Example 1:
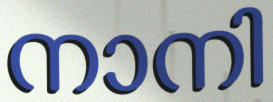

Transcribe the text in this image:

നാനി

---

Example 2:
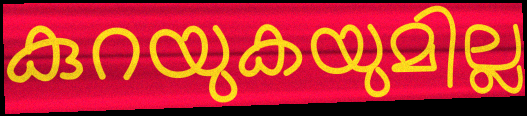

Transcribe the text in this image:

കുറയുകയുമില്ല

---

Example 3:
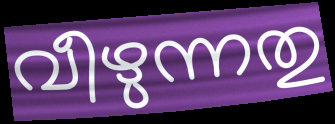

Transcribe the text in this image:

വീഴുന്നതു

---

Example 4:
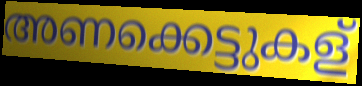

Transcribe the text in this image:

അണക്കെട്ടുകള്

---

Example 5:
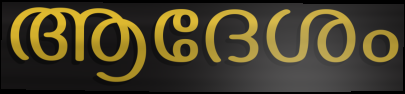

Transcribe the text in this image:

ആദേശം